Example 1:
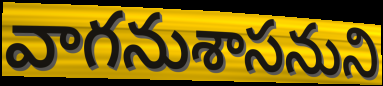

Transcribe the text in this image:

వాగనుశాసనుని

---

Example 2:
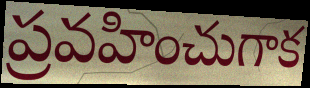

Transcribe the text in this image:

ప్రవహించుగాక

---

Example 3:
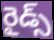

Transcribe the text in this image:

రైడ్స్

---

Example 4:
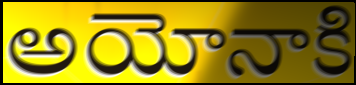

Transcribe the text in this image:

అయోనాకి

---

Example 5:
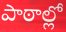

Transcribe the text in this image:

పాఠాల్లో